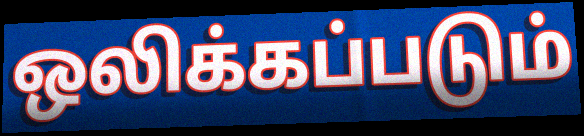
ஒலிக்கப்படும்